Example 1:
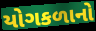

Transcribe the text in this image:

યોગકળાનો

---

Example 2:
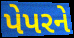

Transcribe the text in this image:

પેપરને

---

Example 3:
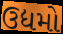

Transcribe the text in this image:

ઉદ્યમો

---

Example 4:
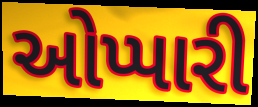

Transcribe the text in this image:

ઓપ્પારી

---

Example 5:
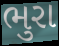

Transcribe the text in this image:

ભુરા